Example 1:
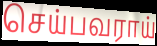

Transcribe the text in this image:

செய்பவராய்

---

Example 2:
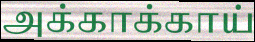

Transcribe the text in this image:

அக்காக்காய்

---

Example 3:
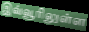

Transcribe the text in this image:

இவ்வூரிலுள்ள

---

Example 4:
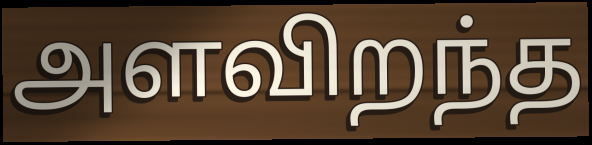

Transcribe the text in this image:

அளவிறந்த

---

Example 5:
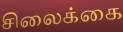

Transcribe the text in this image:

சிலைக்கை